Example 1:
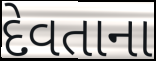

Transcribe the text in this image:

દેવતાના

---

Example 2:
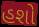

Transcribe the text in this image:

હશો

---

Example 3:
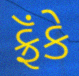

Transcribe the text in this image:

ફ્રૅંકે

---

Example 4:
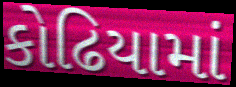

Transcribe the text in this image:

કોઢિયામાં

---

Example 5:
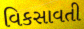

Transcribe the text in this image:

વિકસાવતી